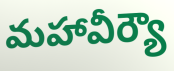
మహావీర్యౌ